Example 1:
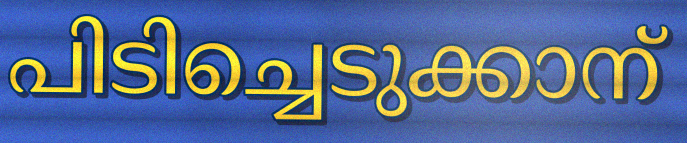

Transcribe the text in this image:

പിടിച്ചെടുക്കാന്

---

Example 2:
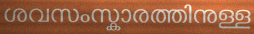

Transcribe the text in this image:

ശവസംസ്കാരത്തിനുള്ള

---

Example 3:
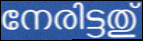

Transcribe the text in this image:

നേരിട്ടതു്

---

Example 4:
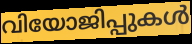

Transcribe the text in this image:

വിയോജിപ്പുകൾ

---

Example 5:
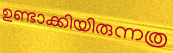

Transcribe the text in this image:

ഉണ്ടാക്കിയിരുന്നത്ര